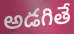
అడగితే